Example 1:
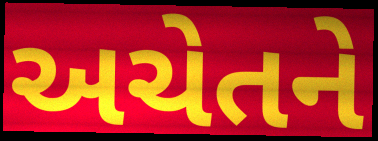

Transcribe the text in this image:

અચેતને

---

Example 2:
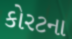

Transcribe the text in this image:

કોરટના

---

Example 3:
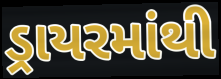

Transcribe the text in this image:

ડ્રાયરમાંથી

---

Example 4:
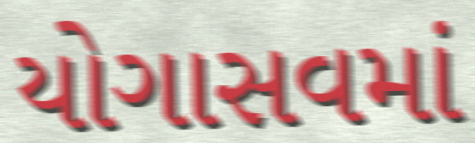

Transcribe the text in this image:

યોગાસવમાં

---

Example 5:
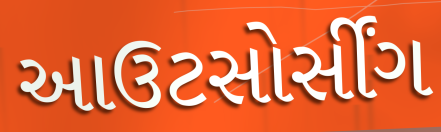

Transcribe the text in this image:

આઉટસોર્સીંગ